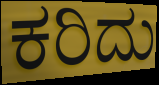
ಕರಿದು